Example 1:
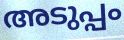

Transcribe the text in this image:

അടുപ്പം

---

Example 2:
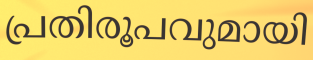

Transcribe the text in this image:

പ്രതിരൂപവുമായി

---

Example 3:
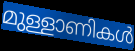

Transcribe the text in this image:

മുള്ളാണികൾ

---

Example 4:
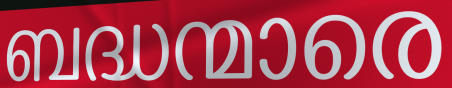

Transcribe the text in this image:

ബദ്ധന്മാരെ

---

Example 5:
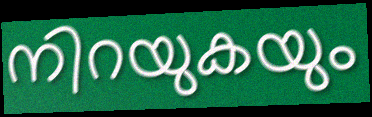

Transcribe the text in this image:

നിറയുകയും